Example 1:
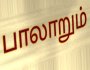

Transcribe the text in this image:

பாலாறும்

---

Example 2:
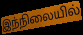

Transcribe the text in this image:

இந்நிலையில்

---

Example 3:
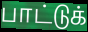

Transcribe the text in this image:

பாட்டுக்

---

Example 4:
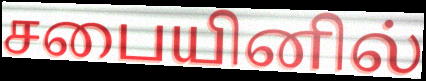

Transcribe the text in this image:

சபையினில்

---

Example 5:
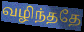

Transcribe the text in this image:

வழிந்ததே